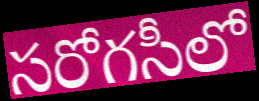
సరోగసీలో